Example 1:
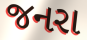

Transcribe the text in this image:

જનરા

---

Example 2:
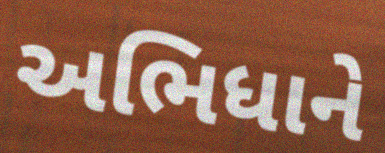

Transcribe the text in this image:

અભિધાને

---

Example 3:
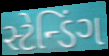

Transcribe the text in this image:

સ્ટેન્ડિંગ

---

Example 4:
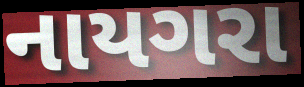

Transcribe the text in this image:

નાયગરા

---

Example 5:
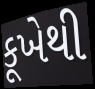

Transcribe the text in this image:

કૂખેથી